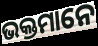
ଭକ୍ତମାନେ